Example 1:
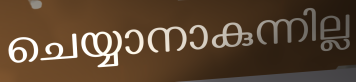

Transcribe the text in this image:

ചെയ്യാനാകുന്നില്ല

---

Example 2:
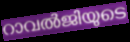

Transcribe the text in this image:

റാവൽജിയുടെ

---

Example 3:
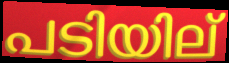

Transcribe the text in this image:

പടിയില്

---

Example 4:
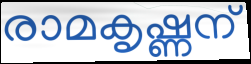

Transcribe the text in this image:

രാമകൃഷ്ണന്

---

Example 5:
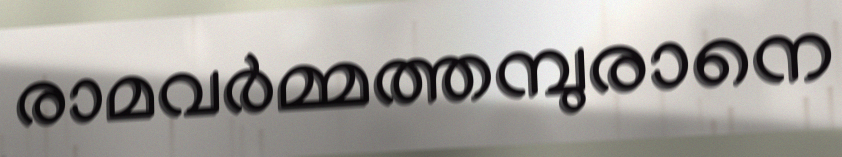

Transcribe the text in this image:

രാമവർമ്മത്തമ്പുരാനെ